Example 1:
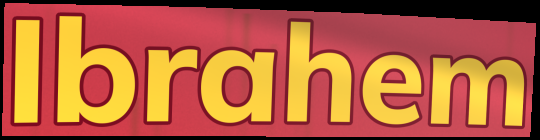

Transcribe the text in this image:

Ibrahem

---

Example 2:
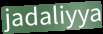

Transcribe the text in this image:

jadaliyya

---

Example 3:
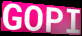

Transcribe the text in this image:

GOPI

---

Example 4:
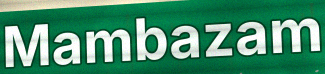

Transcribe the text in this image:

Mambazam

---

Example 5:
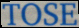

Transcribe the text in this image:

TOSE